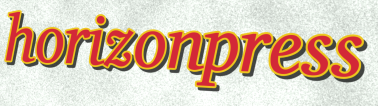
horizonpress